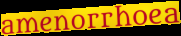
amenorrhoea